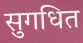
सुगधित